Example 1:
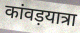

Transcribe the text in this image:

कांवड़यात्रा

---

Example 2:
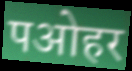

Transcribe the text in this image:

पओहर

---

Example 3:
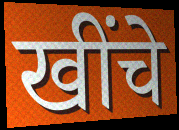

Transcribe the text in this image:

खींचे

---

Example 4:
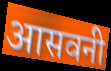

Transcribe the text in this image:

आसवनी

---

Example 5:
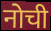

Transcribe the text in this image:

नोची